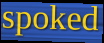
spoked